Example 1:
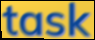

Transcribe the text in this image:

task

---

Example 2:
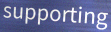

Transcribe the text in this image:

supporting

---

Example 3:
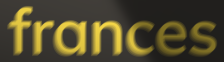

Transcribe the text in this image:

frances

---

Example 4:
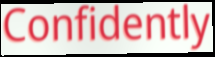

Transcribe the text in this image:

Confidently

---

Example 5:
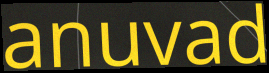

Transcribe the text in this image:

anuvad